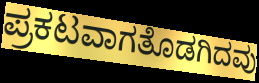
ಪ್ರಕಟವಾಗತೊಡಗಿದವು